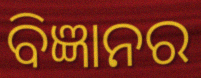
ବିଜ୍ଞାନର